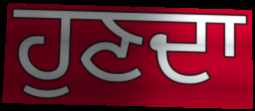
ਹੁਣਦਾ